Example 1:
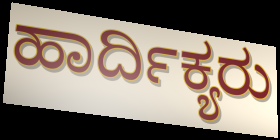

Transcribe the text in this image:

ಹಾರ್ದಿಕ್ಯರು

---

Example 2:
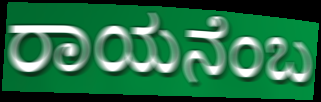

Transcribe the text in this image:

ರಾಯನೆಂಬ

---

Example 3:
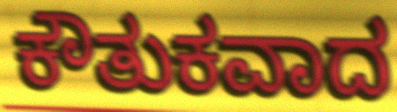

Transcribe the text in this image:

ಕೌತುಕವಾದ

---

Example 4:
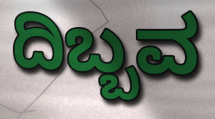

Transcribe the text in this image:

ದಿಬ್ಬವ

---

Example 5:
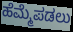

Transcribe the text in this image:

ಹೆಮ್ಮೆಪಡಲು